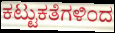
ಕಟ್ಟುಕತೆಗಳಿಂದ